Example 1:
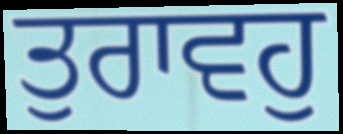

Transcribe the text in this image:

ਤੁਰਾਵਹੁ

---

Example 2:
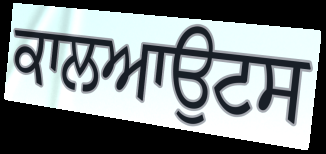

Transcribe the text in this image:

ਕਾਲਆਉਟਸ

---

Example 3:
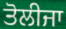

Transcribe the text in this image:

ਤੋਲੀਜਾ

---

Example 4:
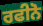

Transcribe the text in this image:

ਰਫੀਨੋ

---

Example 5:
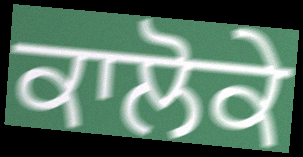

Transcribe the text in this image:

ਕਾਲੋਕੇ